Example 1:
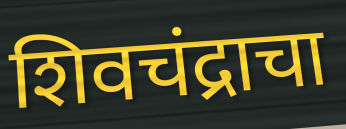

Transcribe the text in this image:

शिवचंद्राचा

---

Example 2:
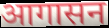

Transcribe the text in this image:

आगासन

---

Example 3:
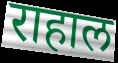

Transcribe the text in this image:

राहाल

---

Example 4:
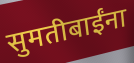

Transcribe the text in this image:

सुमतीबाईंना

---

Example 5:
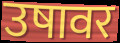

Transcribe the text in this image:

उषावर